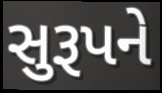
સુરૂપને